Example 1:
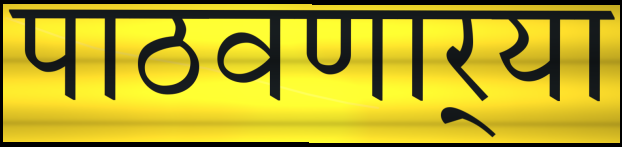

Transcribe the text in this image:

पाठवणार्या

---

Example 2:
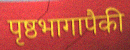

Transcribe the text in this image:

पृष्ठभागापैकी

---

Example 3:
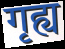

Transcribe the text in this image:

गृह्य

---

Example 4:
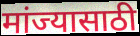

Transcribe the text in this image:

मांज्यासाठी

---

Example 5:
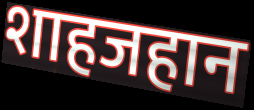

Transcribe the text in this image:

शाहजहान